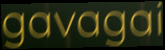
gavagai